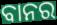
ବାନର